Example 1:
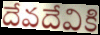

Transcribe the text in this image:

దేవదేవికి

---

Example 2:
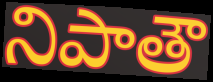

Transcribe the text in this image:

నిపాతౌ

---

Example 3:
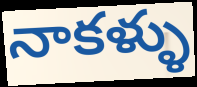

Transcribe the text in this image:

నాకళ్ళు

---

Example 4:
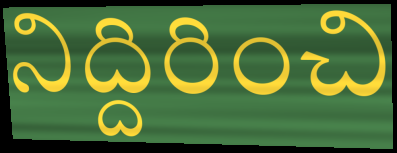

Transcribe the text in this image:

నిద్దిరించి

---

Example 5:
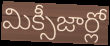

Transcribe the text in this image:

మిక్సీజార్లో